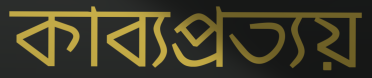
কাব্যপ্রত্যয়